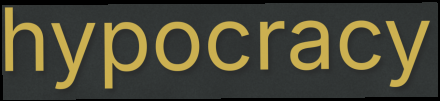
hypocracy